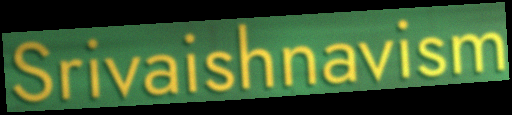
Srivaishnavism